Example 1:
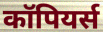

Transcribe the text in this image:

कॉपियर्स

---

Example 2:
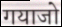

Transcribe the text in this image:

गयाजो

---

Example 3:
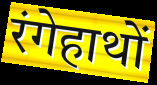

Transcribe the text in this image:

रंगेहाथों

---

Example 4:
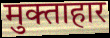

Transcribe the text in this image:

मुक्ताहार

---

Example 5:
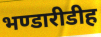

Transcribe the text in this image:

भण्डारीडीह